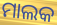
ମାଲକ